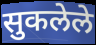
सुकलेले